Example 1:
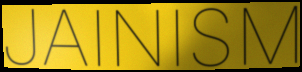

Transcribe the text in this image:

JAINISM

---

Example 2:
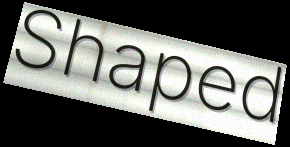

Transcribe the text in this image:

Shaped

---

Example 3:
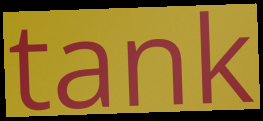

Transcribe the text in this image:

tank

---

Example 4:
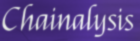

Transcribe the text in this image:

Chainalysis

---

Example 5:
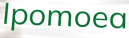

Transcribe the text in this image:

Ipomoea